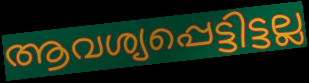
ആവശ്യപ്പെട്ടിട്ടല്ല